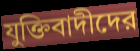
যুক্তিবাদীদের